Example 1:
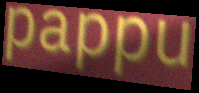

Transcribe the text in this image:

pappu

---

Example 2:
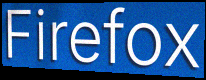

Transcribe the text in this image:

Firefox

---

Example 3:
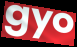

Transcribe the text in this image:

gyo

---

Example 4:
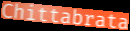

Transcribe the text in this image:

Chittabrata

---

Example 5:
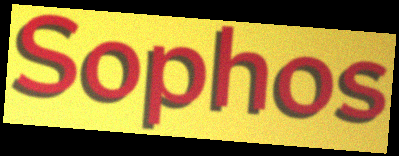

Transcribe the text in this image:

Sophos